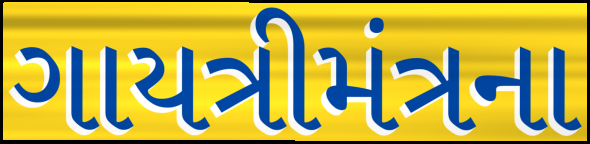
ગાયત્રીમંત્રના